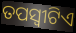
ତପସ୍ୱୀଟିଏ